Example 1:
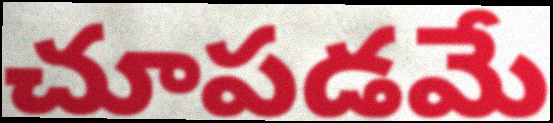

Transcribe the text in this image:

చూపడమే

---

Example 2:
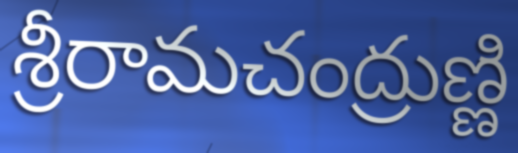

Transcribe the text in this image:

శ్రీరామచంద్రుణ్ణి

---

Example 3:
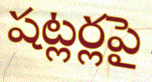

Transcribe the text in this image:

షట్లర్లపై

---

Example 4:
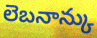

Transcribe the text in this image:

లెబనాన్కు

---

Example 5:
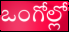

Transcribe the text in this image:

ఒంగోల్లో